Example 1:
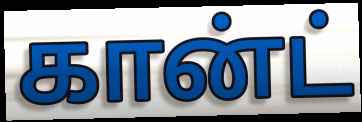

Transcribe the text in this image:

கான்ட்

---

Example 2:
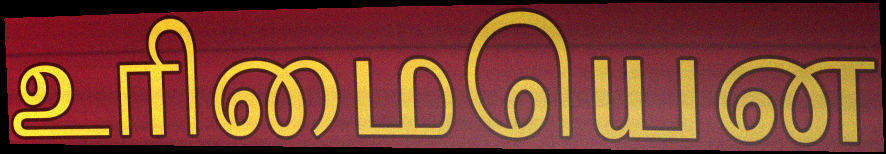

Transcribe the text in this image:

உரிமையென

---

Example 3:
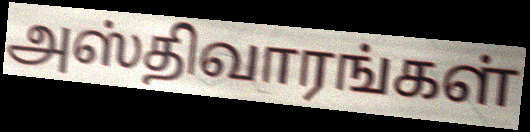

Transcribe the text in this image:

அஸ்திவாரங்கள்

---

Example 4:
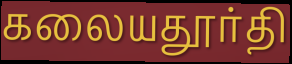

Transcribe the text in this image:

கலையதூர்தி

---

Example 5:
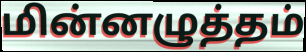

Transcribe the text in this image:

மின்னழுத்தம்